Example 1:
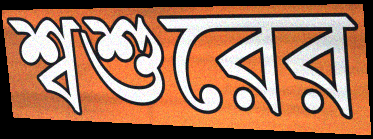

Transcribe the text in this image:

শ্বশুরের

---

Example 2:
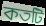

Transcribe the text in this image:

কতটি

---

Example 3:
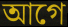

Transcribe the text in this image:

আগে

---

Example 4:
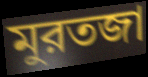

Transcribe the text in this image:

মুরতজা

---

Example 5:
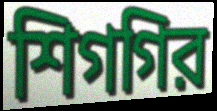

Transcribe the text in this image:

শিগগির